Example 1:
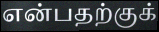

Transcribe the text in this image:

என்பதற்குக்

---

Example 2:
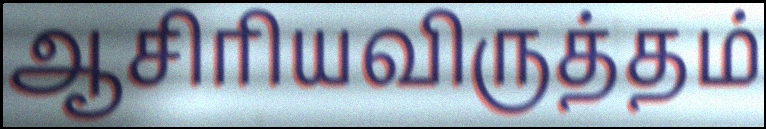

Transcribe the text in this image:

ஆசிரியவிருத்தம்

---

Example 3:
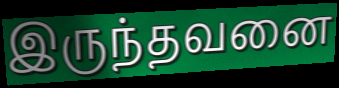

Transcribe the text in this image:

இருந்தவனை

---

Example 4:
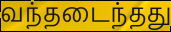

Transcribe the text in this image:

வந்தடைந்தது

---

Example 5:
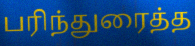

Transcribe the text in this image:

பரிந்துரைத்த